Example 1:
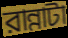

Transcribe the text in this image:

রান্নাটা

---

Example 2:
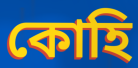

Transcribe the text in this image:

কোহি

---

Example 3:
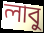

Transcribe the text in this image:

লাবু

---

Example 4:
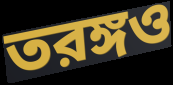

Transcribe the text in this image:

তরঙ্গও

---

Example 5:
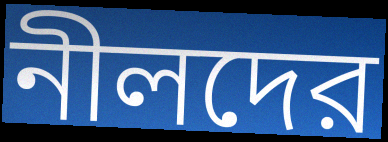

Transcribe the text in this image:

নীলদের